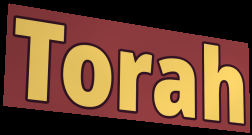
Torah